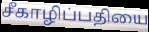
சீகாழிப்பதியை